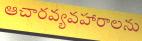
ఆచారవ్యవహారాలను